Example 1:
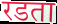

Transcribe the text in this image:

रडता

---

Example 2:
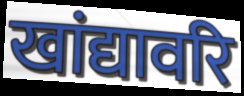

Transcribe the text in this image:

खांद्यावरि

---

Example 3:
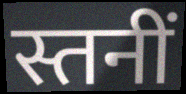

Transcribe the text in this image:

स्तनीं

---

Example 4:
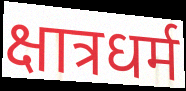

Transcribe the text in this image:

क्षात्रधर्म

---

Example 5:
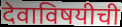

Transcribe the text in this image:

देवाविषयीची